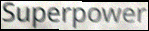
Superpower